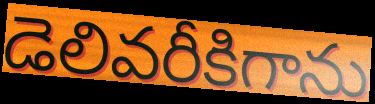
డెలివరీకిగాను